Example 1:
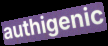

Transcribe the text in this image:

authigenic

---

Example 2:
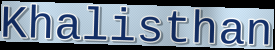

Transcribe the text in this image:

Khalisthan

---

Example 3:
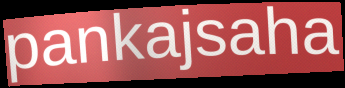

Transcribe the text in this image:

pankajsaha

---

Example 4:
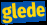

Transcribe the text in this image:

glede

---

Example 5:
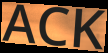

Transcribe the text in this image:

ACK